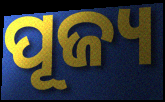
ପୂଜ୍ୟ